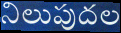
నిలుపుదల